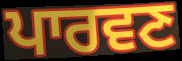
ਪਾਰਵਣ